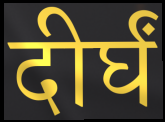
दीर्घं